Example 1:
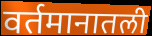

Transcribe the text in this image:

वर्तमानातली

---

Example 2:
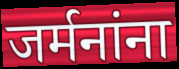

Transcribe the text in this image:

जर्मनांना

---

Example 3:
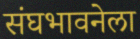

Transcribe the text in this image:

संघभावनेला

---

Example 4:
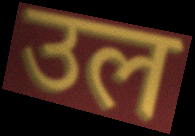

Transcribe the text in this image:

उल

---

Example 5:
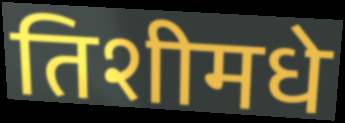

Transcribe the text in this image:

तिशीमधे